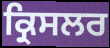
ਕ੍ਰਿਸਲਰ